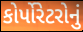
કોર્પોરેટરોનું